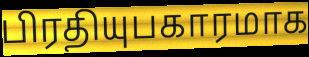
பிரதியுபகாரமாக